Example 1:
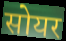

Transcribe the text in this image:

सोयर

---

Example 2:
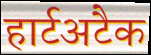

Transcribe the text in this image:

हार्टअटैक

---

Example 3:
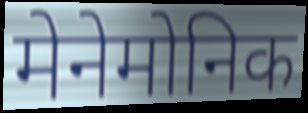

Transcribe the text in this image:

मेनेमोनिक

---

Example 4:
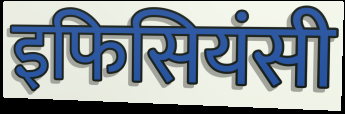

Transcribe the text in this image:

इफिसियंसी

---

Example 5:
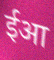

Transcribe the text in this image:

ईआ